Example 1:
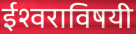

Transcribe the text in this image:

ईश्वराविषयी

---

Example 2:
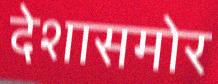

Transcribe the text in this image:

देशासमोर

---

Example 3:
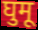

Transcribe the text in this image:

घुमू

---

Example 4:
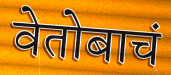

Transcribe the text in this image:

वेतोबाचं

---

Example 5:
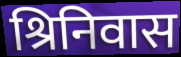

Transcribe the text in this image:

श्रिनिवास